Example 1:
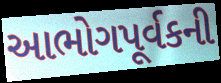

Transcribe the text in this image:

આભોગપૂર્વકની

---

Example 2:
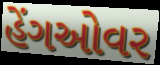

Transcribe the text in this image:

હેંગઓવર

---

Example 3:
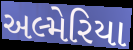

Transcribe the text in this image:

અલ્મેરિયા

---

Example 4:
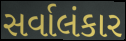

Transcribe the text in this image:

સર્વાલંકાર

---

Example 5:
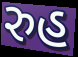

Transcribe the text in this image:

રુહ